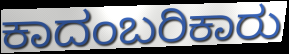
ಕಾದಂಬರಿಕಾರು